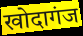
खोदागंज